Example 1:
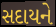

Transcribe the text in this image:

સદાયને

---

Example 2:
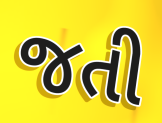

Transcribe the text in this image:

જતી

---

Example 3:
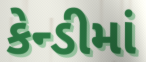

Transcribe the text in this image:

કેન્ડીમાં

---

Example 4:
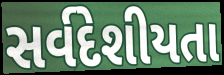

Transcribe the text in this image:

સર્વદેશીયતા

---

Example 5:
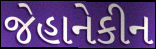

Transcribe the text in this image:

જેહાનેકીન